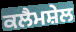
ਕਲੈਮਸ਼ੇਲ